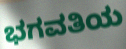
ಭಗವತಿಯ